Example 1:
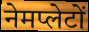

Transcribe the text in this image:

नेमप्लेटों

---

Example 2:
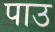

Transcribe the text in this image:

पाउ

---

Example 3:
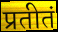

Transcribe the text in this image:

प्रतीतं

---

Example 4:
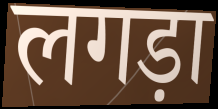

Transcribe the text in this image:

लगड़ा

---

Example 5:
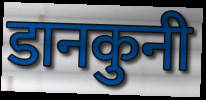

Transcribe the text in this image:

डानकुनी